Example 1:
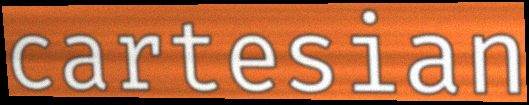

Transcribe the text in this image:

cartesian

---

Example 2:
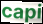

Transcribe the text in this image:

capi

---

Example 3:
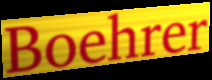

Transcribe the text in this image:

Boehrer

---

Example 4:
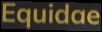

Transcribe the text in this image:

Equidae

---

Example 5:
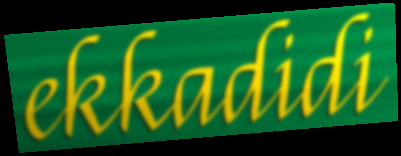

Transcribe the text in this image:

ekkadidi